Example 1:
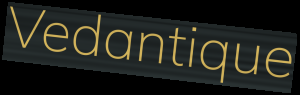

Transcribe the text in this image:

Vedantique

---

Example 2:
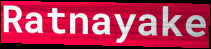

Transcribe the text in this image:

Ratnayake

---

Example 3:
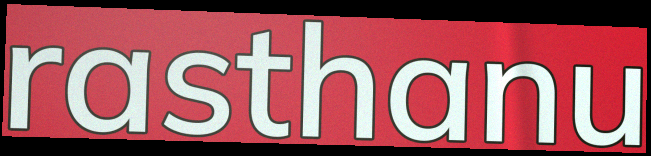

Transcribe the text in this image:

rasthanu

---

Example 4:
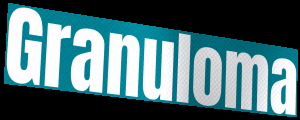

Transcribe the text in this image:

Granuloma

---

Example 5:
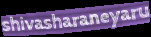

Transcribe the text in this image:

shivasharaneyaru